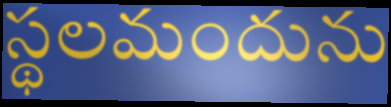
స్థలమందును